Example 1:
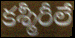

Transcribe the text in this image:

కశ్మీరీలే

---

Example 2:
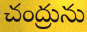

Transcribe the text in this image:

చంద్రును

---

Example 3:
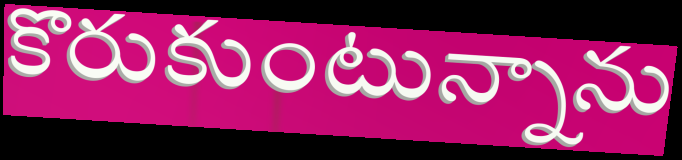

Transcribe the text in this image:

కొరుకుంటున్నాను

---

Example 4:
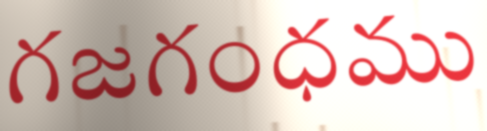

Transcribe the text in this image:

గజగంధము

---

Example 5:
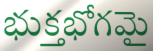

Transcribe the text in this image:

భుక్తభోగమై